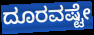
ದೂರವಷ್ಟೇ